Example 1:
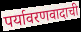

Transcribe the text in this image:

पर्यावरणवादाची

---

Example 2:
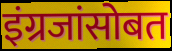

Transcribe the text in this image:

इंग्रजांसोबत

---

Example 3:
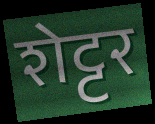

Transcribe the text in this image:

शेट्टर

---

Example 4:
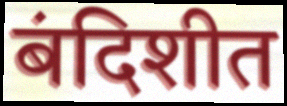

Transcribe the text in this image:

बंदिशीत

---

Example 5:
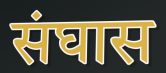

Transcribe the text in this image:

संघास